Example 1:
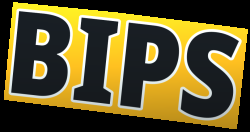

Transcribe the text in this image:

BIPS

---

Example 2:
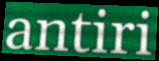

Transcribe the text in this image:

antiri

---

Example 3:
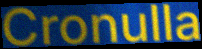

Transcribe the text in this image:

Cronulla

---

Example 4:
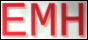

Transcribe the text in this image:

EMH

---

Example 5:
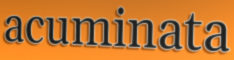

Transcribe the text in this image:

acuminata